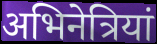
अभिनेत्रियां